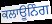
ਕਲਾਊਨਿੰਗ